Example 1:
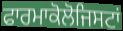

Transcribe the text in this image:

ਫਾਰਮਾਕੋਲੋਜਿਸਟਾਂ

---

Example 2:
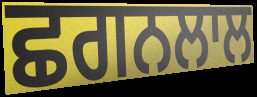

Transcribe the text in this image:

ਛਗਨਲਾਲ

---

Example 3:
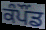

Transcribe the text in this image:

ਕੰਪੌਂਡ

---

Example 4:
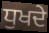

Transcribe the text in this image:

ਧੁਖਦੇ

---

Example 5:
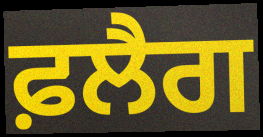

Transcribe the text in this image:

ਫ਼ਲੈਗ